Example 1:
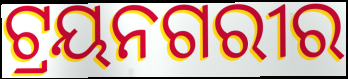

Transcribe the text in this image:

ଟ୍ରୟନଗରୀର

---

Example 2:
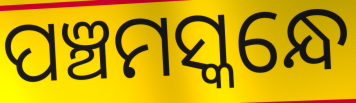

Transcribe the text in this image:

ପଞ୍ଚମସ୍କନ୍ଧେ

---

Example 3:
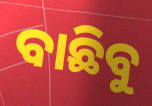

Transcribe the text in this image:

ବାଛିବୁ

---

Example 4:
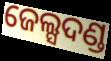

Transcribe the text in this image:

ଜେଲ୍ସଦଣ୍ଡ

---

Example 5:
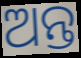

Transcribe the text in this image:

ଅନ୍ତ